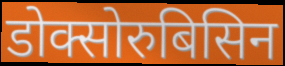
डोक्सोरुबिसिन